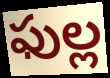
ఫుల్ల